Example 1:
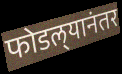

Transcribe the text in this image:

फोडल्यानंतर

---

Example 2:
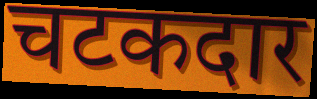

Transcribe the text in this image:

चटकदार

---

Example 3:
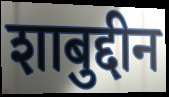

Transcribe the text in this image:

शाबुद्दीन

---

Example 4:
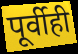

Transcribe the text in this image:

पूर्वीही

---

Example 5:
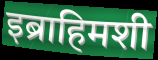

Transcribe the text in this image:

इब्राहिमशी